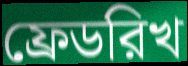
ফ্রেডরিখ